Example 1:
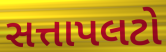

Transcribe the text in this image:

સત્તાપલટો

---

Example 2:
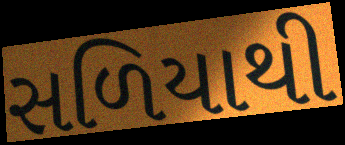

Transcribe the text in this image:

સળિયાથી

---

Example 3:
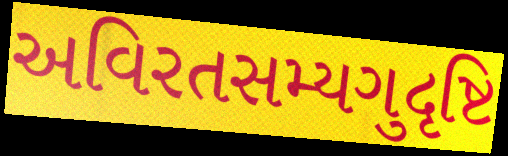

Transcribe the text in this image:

અવિરતસમ્યગુદૃષ્ટિ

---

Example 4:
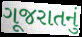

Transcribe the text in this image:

ગૂજરાતનું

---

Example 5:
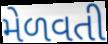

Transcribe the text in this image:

મેળવતી